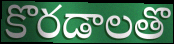
కొరడాలతొ